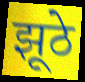
झूठे